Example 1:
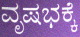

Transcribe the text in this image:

ವೃಷಭಕ್ಕೆ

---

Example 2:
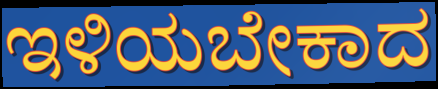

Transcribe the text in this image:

ಇಳಿಯಬೇಕಾದ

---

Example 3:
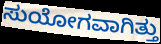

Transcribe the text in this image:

ಸುಯೋಗವಾಗಿತ್ತು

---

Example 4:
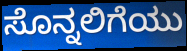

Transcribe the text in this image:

ಸೊನ್ನಲಿಗೆಯು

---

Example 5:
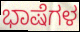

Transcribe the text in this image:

ಭಾಷೆಗಳ